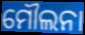
ମୌଲନା